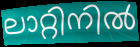
ലാറ്റിനിൽ